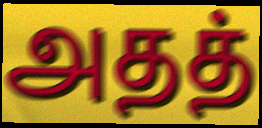
அதத்